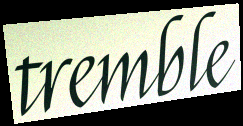
tremble